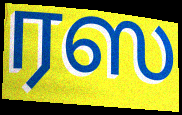
ரஸ